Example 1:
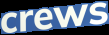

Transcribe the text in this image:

crews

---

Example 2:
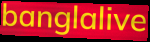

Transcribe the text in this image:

banglalive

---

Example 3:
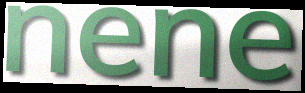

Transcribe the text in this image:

nene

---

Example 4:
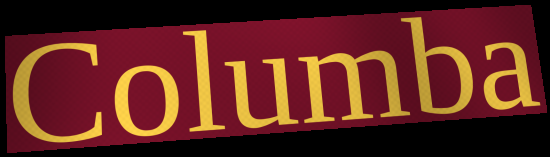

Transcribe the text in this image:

Columba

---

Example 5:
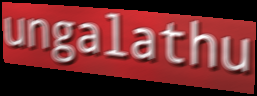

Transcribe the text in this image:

ungalathu